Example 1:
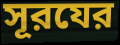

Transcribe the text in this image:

সূরযের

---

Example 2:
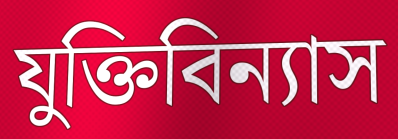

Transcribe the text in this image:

যুক্তিবিন্যাস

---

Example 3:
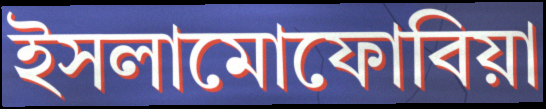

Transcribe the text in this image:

ইসলামোফোবিয়া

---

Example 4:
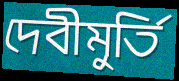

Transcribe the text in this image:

দেবীমুর্তি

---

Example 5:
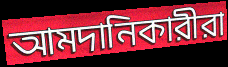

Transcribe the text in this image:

আমদানিকারীরা